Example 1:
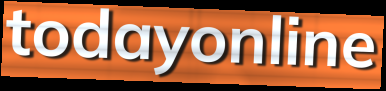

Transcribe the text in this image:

todayonline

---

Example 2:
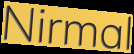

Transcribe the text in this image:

Nirmal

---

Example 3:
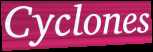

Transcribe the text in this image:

Cyclones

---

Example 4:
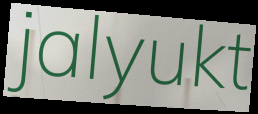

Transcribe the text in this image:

jalyukt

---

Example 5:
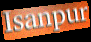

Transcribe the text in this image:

Isanpur